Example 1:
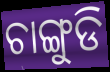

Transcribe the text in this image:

ଚାଙ୍ଗୁଡି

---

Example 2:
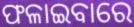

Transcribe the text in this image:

ଫଳାଇବାରେ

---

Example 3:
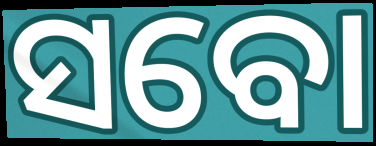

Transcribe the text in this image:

ସବୋ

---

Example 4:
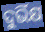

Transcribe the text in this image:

ଦୁର୍ଭିକ୍ଷ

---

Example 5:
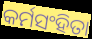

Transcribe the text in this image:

କର୍ମସଂହିତା